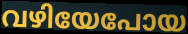
വഴിയേപോയ